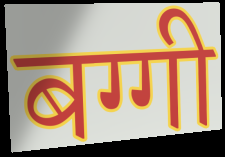
बग्गी